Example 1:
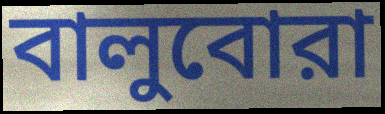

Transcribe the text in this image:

বালুবোরা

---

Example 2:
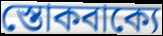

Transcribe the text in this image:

স্তোকবাক্যে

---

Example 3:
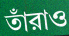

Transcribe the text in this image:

তাঁরাও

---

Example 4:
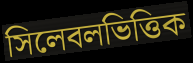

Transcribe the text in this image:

সিলেবলভিত্তিক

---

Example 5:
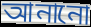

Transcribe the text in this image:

আনানো